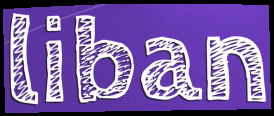
liban